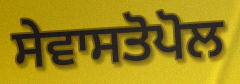
ਸੇਵਾਸਤੋਪੋਲ